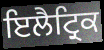
ਇਲੈਟ੍ਰਿਕ